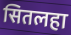
सितलहा